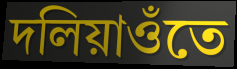
দলিয়াওঁতে